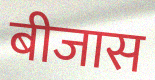
बीजास